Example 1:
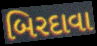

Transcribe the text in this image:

બિરદાવા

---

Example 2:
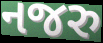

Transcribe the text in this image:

નજરુ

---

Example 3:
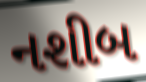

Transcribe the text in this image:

નશીબ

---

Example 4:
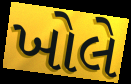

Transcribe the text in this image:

ખોલે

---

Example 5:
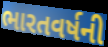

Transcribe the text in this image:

ભારતવર્ષની